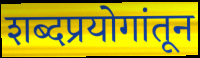
शब्दप्रयोगांतून